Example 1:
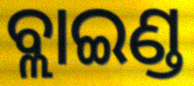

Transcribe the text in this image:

ବ୍ଲାଇଣ୍ଡ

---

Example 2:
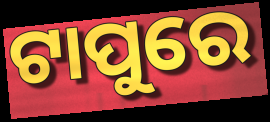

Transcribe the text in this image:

ଟାପୁରେ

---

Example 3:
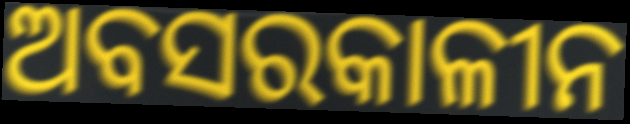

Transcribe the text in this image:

ଅବସରକାଳୀନ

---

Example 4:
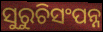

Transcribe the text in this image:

ସୁରୁଚିସଂପନ୍ନ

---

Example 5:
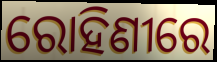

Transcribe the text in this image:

ରୋହିଣୀରେ